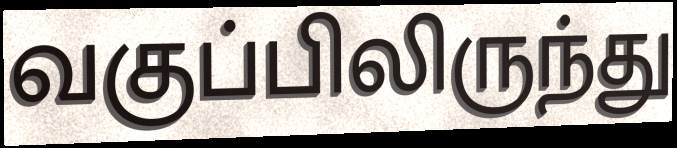
வகுப்பிலிருந்து